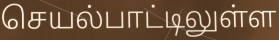
செயல்பாட்டிலுள்ள